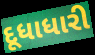
દૂધાધારી